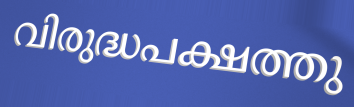
വിരുദ്ധപക്ഷത്തു